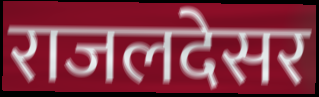
राजलदेसर